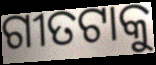
ଗୀତଟାକୁ